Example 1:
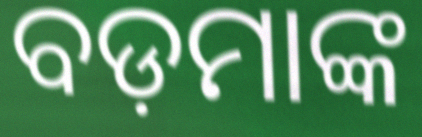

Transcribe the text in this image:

ବଡ଼ମାଙ୍କ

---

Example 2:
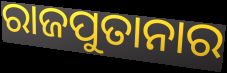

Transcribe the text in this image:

ରାଜପୁତାନାର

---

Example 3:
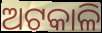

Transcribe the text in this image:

ଅଟକାଳି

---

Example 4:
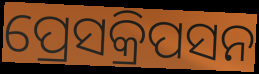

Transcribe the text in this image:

ପ୍ରେସକ୍ରିପସନ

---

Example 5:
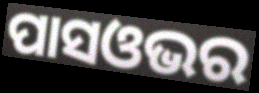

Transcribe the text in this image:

ପାସଓଭର